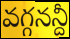
వగ్గనన్దీ